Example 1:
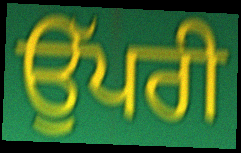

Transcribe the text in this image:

ਉੱਪਰੀ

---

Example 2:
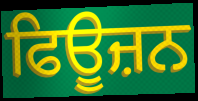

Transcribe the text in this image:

ਫਿਊਜ਼ਨ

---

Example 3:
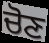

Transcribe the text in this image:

ਚੋਣ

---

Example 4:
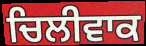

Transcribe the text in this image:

ਚਿਲੀਵਾਕ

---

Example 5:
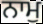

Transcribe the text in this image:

ਨਾਮੁ